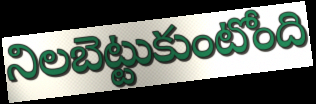
నిలబెట్టుకుంటోంది